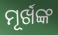
ମୂର୍ଖଙ୍କ